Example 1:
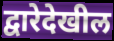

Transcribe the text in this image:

द्वारेदेखील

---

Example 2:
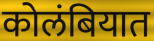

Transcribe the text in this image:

कोलंबियात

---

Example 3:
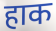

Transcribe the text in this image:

हाक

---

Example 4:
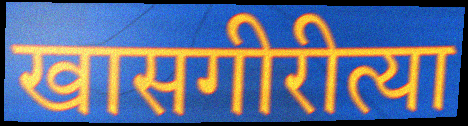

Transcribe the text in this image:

खासगीरीत्या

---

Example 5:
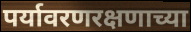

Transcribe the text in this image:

पर्यावरणरक्षणाच्या